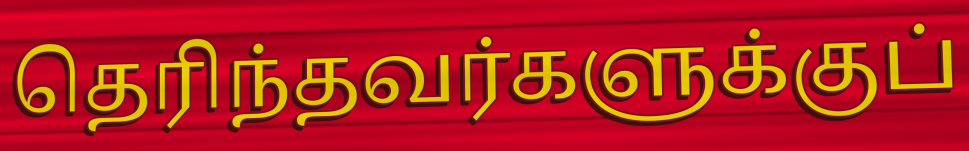
தெரிந்தவர்களுக்குப்